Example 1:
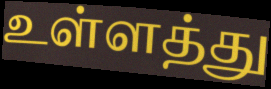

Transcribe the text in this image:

உள்ளத்து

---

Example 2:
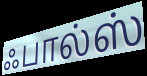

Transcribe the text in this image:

ஃபால்ஸ்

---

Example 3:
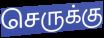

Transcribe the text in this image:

செருக்கு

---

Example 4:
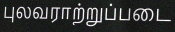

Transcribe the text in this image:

புலவராற்றுப்படை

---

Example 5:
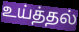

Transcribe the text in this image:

உய்த்தல்